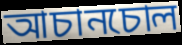
আচানচোল